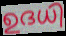
ഉദധി